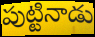
పుట్టినాడు